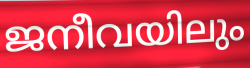
ജനീവയിലും